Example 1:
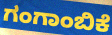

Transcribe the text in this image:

ಗಂಗಾಂಬಿಕೆ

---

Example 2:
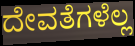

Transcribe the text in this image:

ದೇವತೆಗಳೆಲ್ಲ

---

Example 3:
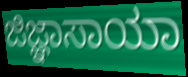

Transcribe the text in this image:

ಜಿಜ್ಞಾಸಾಯಾ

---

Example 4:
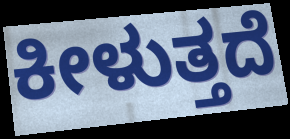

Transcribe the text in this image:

ಕೀಳುತ್ತದೆ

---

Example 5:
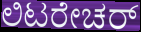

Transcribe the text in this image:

ಲಿಟರೇಚರ್